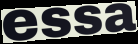
essa